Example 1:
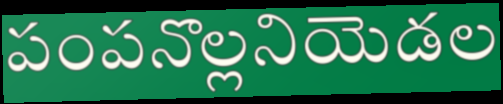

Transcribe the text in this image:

పంపనొల్లనియెడల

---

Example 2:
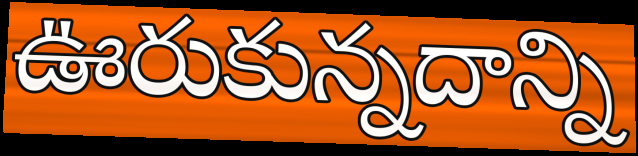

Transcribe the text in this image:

ఊరుకున్నదాన్ని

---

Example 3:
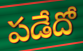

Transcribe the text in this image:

పడేదో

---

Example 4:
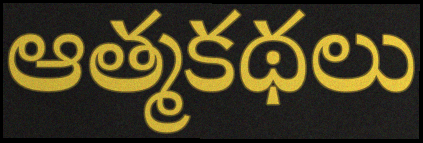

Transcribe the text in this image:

ఆత్మకథలు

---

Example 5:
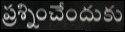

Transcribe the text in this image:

ప్రశ్నించేందుకు